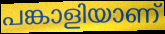
പങ്കാളിയാണ്